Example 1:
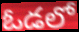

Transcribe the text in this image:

ఓడలో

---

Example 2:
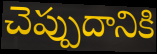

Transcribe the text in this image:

చెప్పుదానికి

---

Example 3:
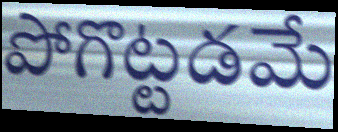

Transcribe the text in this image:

పోగొట్టడమే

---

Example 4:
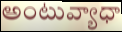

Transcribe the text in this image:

అంటువ్యాధా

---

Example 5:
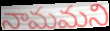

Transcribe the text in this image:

నామమని